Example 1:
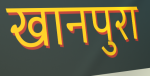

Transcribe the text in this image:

खानपुरा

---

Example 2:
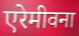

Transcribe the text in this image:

एरेमीवना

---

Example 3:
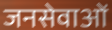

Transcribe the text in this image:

जनसेवाओं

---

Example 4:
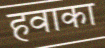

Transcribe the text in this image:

हवाका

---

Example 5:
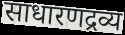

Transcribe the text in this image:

साधारणद्रव्य